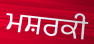
ਮਸ਼ਰਕੀ